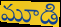
మూడి